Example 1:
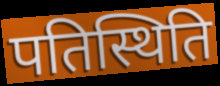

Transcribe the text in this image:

पतिस्थिति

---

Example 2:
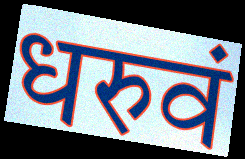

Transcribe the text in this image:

धरुवं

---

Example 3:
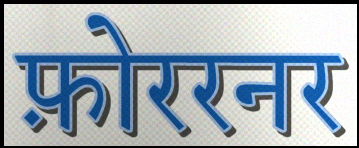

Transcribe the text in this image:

फ़ोररनर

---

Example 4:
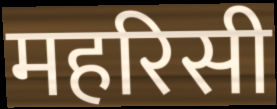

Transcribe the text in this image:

महरिसी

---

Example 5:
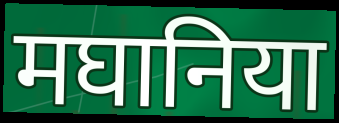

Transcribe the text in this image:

मघानिया